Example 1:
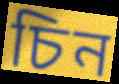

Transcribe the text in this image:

চিন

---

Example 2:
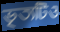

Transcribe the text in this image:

ভৃত্যটিও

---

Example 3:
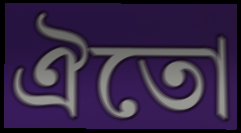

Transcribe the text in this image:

ঐতো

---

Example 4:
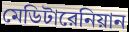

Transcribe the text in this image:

মেডিটারেনিয়ান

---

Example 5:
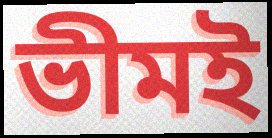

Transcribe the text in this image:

ভীমই